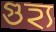
গুহ্য